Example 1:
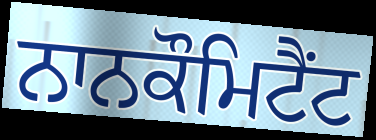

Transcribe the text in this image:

ਨਾਨਕੌਮਿਟੈਂਟ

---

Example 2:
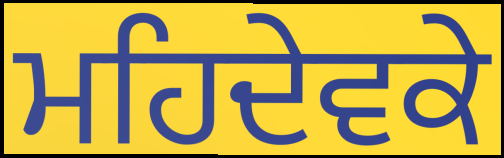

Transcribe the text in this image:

ਮਹਿਦੇਵਕੇ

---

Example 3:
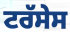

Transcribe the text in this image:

ਟਰੱਸੇਸ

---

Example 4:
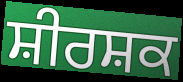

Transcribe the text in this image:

ਸ਼ੀਰਸ਼ਕ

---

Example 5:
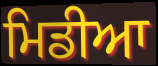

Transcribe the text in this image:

ਮਿਡੀਆ